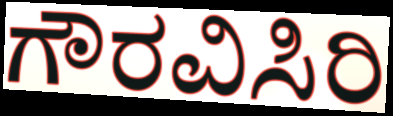
ಗೌರವಿಸಿರಿ